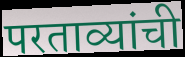
परताव्यांची